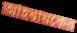
আহবায়কের